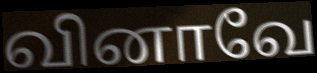
வினாவே